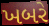
ખબરે